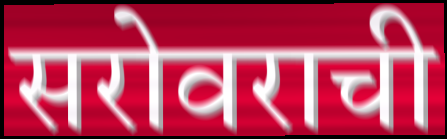
सरोवराची